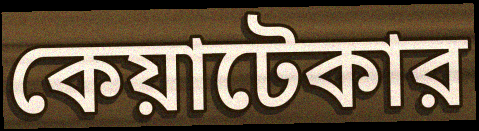
কেয়াটেকার